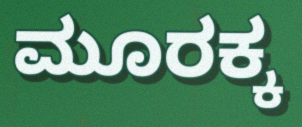
ಮೂರಕ್ಕ